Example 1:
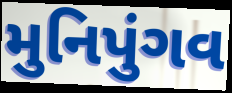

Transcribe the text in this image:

મુનિપુંગવ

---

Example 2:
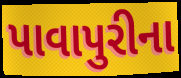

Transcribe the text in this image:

પાવાપુરીના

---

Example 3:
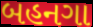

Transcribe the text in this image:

બહનગા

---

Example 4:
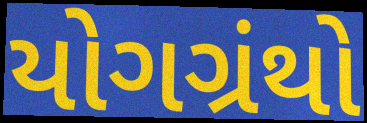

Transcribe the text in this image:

યોગગ્રંથો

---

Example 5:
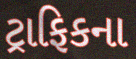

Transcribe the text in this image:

ટ્રાફિકના